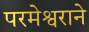
परमेश्वराने